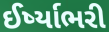
ઈર્ષ્યાભરી